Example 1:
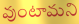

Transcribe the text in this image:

వుంటామని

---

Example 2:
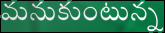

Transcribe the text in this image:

మనుకుంటున్న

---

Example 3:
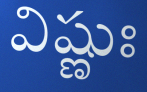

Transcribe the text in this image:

విష్ణుః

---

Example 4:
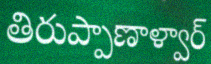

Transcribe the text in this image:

తిరుప్పాణాళ్వార్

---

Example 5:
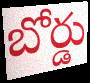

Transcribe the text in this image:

బోర్డు